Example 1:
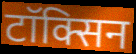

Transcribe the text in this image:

टॉक्सिन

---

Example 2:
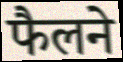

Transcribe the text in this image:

फैलने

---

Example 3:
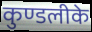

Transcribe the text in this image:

कुण्डलीके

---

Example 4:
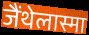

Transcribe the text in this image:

जैंथेलास्मा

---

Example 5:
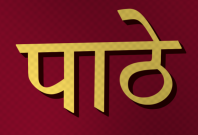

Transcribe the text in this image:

पाठे